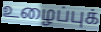
உழைப்புக்